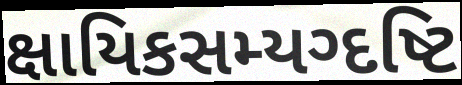
ક્ષાયિકસમ્યગ્દષ્ટિ